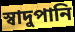
স্বাদুপানি